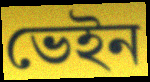
ভেইন